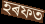
হৰফত